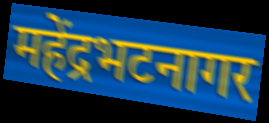
महेंद्रभटनागर